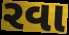
રવા